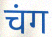
चंग